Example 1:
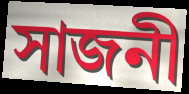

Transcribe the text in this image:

সাজনী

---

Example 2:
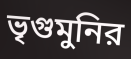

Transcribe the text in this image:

ভৃগুমুনির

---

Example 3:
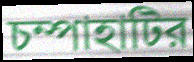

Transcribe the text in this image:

চম্পাহাটির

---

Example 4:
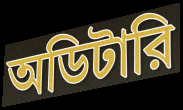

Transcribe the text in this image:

অডিটারি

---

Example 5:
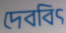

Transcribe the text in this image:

দেববিৎ